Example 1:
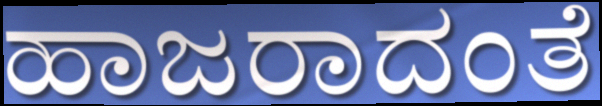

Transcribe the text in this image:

ಹಾಜರಾದಂತೆ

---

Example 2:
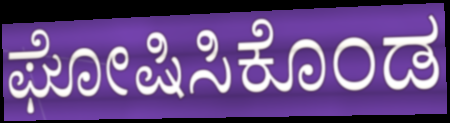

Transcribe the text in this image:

ಘೋಷಿಸಿಕೊಂಡ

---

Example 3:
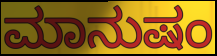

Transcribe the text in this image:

ಮಾನುಷಂ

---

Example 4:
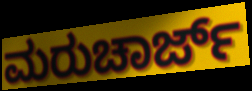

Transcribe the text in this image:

ಮರುಚಾರ್ಜ್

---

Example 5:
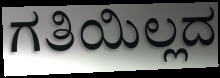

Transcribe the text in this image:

ಗತಿಯಿಲ್ಲದ